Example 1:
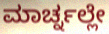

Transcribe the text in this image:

ಮಾರ್ಚ್ನಲ್ಲೇ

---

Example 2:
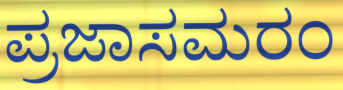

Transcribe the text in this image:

ಪ್ರಜಾಸಮರಂ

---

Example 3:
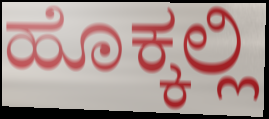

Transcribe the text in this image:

ಹೊಕ್ಕಲ್ಲಿ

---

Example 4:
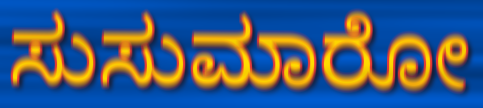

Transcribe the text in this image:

ಸುಸುಮಾರೋ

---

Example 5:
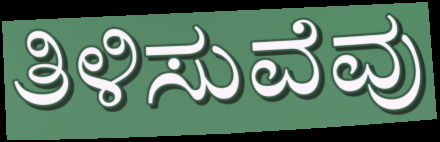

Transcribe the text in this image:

ತಿಳಿಸುವೆವು